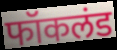
फॉकलंड